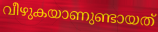
വീഴുകയാണുണ്ടായത്